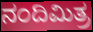
ನಂದಿಮಿತ್ರ